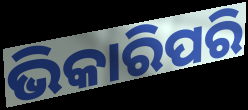
ଭିକାରିପରି